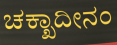
ಚಕ್ಖಾದೀನಂ